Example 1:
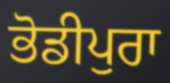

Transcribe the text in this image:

ਭੋਡੀਪੁਰਾ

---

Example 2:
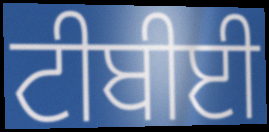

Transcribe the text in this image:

ਟੀਬੀਈ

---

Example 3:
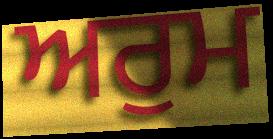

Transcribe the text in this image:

ਅਰੁਮ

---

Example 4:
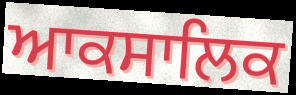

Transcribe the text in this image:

ਆਕਸਾਲਿਕ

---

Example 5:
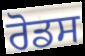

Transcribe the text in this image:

ਰੋਡਸ